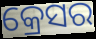
କ୍ରେସର